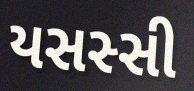
યસસ્સી